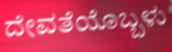
ದೇವತೆಯೊಬ್ಬಳು